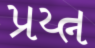
પ્રય્ત્ન